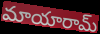
మాయారామ్